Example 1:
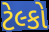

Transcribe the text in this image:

ટેલ્કો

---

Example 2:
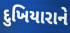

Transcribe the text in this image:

દુખિયારાને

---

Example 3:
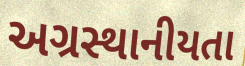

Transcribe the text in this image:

અગ્રસ્થાનીયતા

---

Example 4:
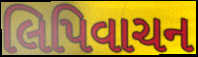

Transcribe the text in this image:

લિપિવાચન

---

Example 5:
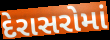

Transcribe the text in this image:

દેરાસરોમાં